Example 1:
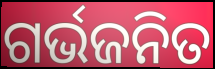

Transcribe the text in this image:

ଗର୍ଭଜନିତ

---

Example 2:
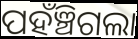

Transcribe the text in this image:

ପହଁଞ୍ଚିଗଲା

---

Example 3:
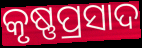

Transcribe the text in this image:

କୃଷ୍ଣପ୍ରସାଦ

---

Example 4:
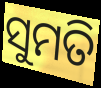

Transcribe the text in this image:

ସୁମତି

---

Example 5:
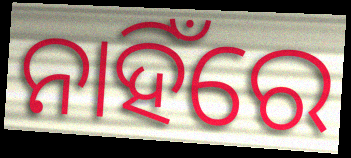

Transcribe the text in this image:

ନାହିଁରେ